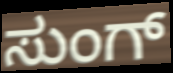
ಸುಂಗ್